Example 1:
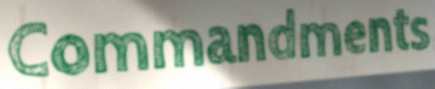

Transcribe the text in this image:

Commandments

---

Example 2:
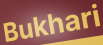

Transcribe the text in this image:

Bukhari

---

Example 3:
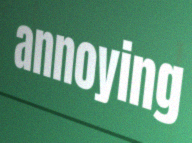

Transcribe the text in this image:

annoying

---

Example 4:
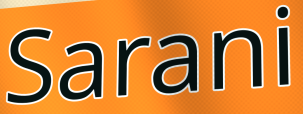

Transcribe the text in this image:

Sarani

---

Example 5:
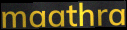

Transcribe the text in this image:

maathra